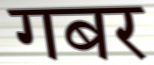
गबर